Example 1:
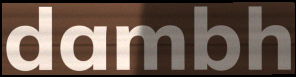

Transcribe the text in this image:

dambh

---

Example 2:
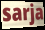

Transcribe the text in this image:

sarja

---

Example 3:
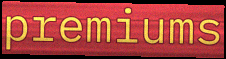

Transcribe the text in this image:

premiums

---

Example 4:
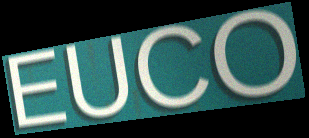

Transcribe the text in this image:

EUCO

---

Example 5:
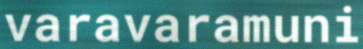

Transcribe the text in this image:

varavaramuni